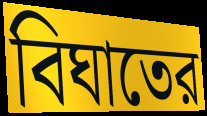
বিঘাতের